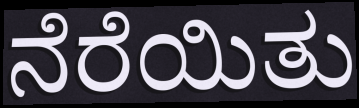
ನೆರೆಯಿತು